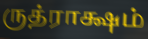
ருத்ராக்ஷம்